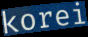
korei